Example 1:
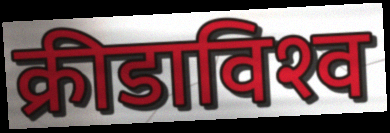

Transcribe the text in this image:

क्रीडाविश्व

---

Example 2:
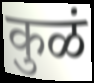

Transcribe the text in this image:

कुळं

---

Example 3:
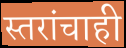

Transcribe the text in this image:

स्तरांचाही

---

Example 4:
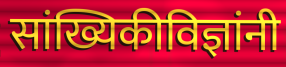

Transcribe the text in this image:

सांख्यिकीविज्ञांनी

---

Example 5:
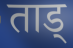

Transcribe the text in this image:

ताड्